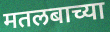
मतलबाच्या